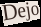
Dejo